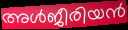
അൾജീരിയൻ